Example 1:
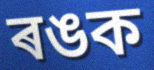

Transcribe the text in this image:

ৰঙক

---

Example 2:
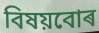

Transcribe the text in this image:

বিষয়বোৰ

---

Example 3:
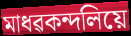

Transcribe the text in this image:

মাধৱকন্দলিয়ে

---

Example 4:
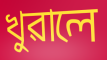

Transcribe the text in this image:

খুৱালে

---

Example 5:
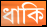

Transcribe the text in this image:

ধাকি